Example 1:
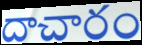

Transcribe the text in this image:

దాచారం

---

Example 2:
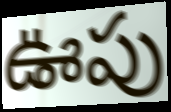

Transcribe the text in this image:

ఊపు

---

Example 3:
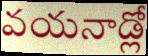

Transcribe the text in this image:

వయనాడ్లో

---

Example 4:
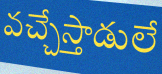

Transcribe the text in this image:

వచ్చేస్తాడులే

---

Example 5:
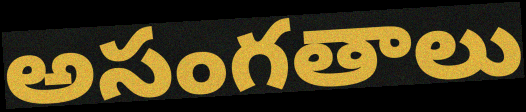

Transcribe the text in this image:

అసంగతాలు